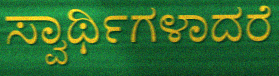
ಸ್ವಾರ್ಥಿಗಳಾದರೆ